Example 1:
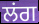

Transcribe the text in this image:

ਲਂਗ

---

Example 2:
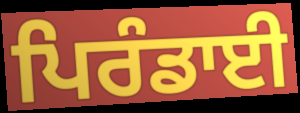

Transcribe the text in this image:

ਪਿਰੰਡਾਈ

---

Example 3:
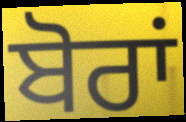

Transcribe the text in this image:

ਬੋਰਾਂ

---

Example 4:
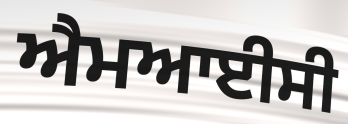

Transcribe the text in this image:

ਐਮਆਈਸੀ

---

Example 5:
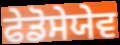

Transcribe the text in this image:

ਫੇਡੋਸੇਯੇਵ